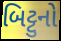
બિટ્ટુનો